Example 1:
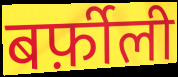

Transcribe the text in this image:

बर्फ़ीली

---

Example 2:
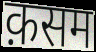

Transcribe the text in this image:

क़सम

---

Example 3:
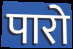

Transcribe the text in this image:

पारो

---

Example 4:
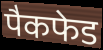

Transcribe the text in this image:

पैकफेड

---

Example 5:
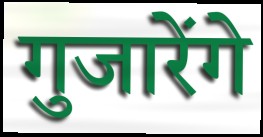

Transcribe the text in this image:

गुजारेंगे